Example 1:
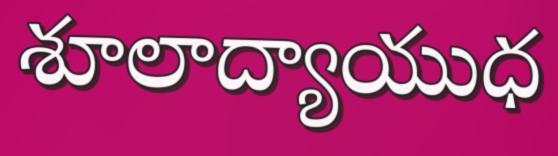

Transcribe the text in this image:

శూలాద్యాయుధ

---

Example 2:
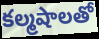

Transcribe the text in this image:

కల్మషాలతో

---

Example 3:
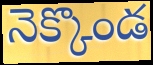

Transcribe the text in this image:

నెక్కొండ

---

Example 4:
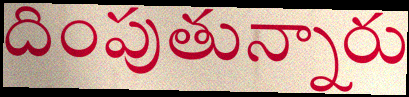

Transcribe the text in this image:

దింపుతున్నారు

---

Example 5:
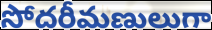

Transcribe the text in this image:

సోదరీమణులుగా